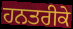
ਹਨਤਰੀਕੇ